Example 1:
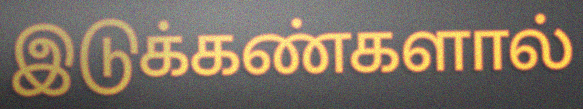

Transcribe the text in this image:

இடுக்கண்களால்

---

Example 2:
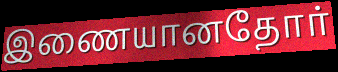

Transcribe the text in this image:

இணையானதோர்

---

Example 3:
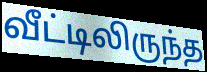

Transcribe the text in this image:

வீட்டிலிருந்த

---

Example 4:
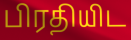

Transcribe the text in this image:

பிரதியிட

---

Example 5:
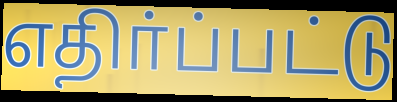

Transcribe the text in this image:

எதிர்ப்பட்டு